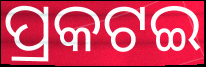
ପ୍ରକଟଇ